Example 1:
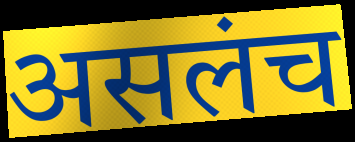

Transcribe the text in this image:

असलंच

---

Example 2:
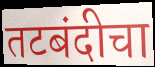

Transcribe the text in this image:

तटबंदीचा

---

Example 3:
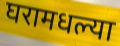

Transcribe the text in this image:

घरामधल्या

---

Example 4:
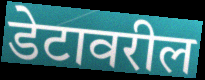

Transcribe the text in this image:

डेटावरील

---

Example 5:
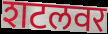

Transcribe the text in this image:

शटलवर